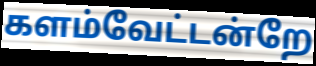
களம்வேட்டன்றே